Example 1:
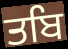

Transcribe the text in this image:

ਤਬਿ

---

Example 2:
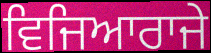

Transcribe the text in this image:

ਵਿਜਿਆਰਾਜੇ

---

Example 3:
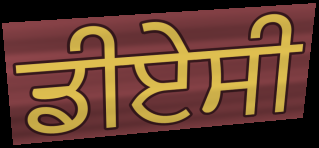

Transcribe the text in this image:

ਡੀਏਸੀ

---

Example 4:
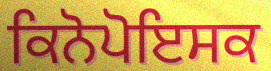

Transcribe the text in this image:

ਕਿਨੋਪੋਇਸਕ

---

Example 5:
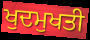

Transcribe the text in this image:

ਖੁਦਮੁਖਤੀ